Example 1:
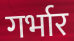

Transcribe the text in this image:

गर्भार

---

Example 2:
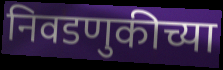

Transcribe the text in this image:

निवडणुकीच्या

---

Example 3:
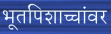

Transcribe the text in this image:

भूतपिशाच्चांवर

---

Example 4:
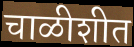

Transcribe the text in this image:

चाळीशीत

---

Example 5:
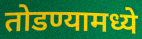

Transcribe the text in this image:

तोडण्यामध्ये